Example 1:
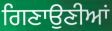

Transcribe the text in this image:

ਗਿਣਾਉਣੀਆਂ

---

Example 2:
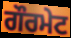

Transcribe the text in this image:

ਗੌਰਮੇਟ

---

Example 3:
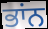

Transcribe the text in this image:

ਭਾਂਨ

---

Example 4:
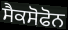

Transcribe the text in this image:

ਸੈਕਸੋਫੋਨ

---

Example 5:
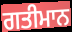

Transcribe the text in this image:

ਗਤੀਮਾਨ